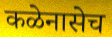
कळेनासेच